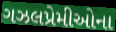
ગઝલપ્રેમીઓના